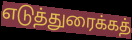
எடுத்துரைக்கத்